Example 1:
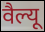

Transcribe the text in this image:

वैल्यू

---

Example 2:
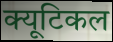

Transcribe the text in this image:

क्यूटिकल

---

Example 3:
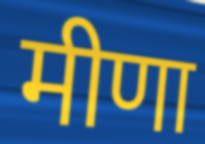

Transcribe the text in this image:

मीणा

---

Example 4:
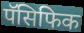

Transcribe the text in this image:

पॅसिफिक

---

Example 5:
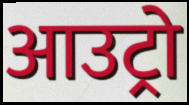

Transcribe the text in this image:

आउट्रो